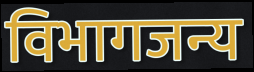
विभागजन्य